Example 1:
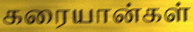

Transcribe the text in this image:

கரையான்கள்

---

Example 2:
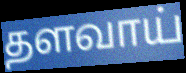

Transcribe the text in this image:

தளவாய்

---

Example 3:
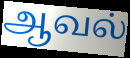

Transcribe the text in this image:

ஆவல்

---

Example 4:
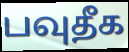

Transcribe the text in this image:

பவுதீக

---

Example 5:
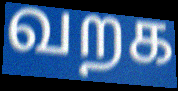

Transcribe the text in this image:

வறக